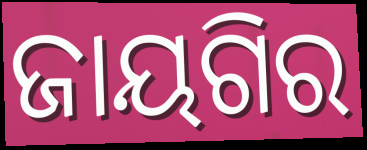
ଜାୟଗିର